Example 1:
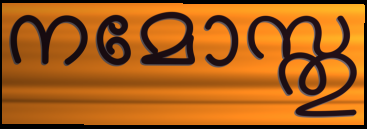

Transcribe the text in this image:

നമോസ്തു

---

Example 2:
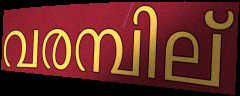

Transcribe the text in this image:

വരമ്പില്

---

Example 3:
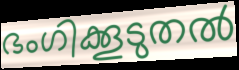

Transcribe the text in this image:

ഭംഗിക്കൂടുതൽ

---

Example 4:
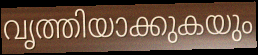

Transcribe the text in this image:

വൃത്തിയാക്കുകയും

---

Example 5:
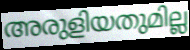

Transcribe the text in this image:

അരുളിയതുമില്ല